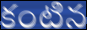
కంటిన